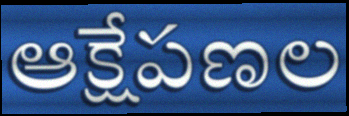
ఆక్షేపణల